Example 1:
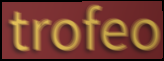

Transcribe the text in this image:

trofeo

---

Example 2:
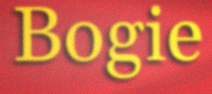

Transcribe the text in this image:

Bogie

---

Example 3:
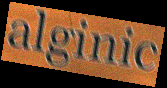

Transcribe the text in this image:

alginic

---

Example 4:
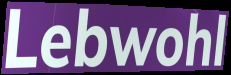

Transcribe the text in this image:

Lebwohl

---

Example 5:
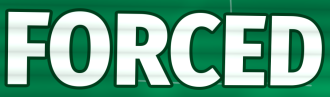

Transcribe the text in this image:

FORCED